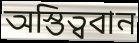
অস্তিত্ববান